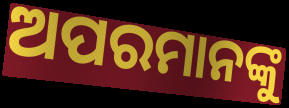
ଅପରମାନଙ୍କୁ